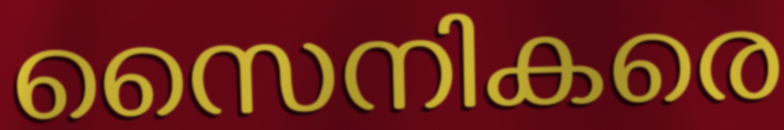
സൈനികരെ